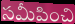
సమీపించి